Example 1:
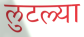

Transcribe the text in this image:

लुटल्या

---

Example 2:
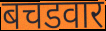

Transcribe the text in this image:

बचडवार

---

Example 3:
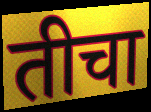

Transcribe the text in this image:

तीचा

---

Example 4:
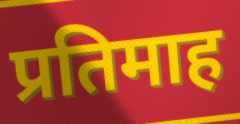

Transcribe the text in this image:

प्रतिमाह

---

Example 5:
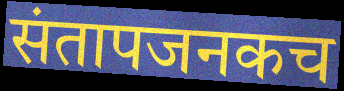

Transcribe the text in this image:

संतापजनकच